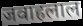
जवाहलाल